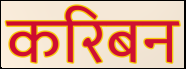
करिबन